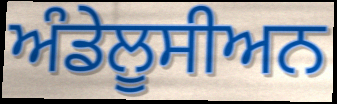
ਅੰਡੇਲੂਸੀਅਨ